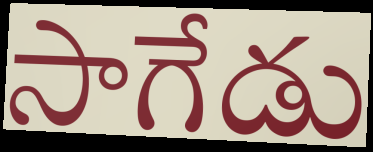
సాగేడు